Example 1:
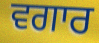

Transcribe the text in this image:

ਵਗਾਰ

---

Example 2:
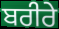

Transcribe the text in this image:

ਬਰੀਰੇ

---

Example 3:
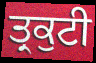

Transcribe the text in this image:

ਤ੍ਰਕੁਟੀ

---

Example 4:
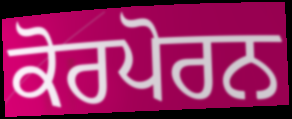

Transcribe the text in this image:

ਕੋਰਪੋਰਨ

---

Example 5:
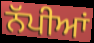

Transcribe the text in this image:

ਨੱਪੀਆਂ